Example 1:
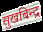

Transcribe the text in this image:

सुखबिन्द्र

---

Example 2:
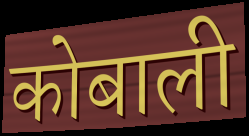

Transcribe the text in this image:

कोबाली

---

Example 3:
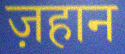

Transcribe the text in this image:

ज़हान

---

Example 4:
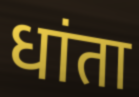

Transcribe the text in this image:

धांता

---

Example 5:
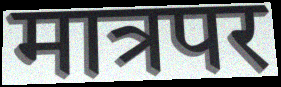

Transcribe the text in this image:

मात्रपर